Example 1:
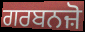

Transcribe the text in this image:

ਗਰਬਨਜ਼ੋ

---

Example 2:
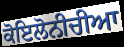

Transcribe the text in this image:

ਕੋਇਲੋਨੀਚੀਆ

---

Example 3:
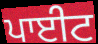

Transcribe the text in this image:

ਪਾਈਟ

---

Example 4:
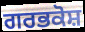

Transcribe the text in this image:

ਗਰਭਕੋਸ਼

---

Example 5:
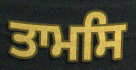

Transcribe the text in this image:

ਤਾਮਸਿ